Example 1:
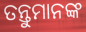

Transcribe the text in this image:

ତନ୍ତୁମାନଙ୍କ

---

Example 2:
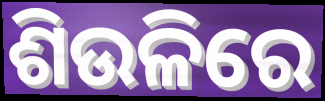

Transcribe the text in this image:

ଶିଉଳିରେ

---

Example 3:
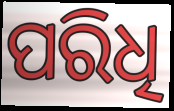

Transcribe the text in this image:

ପରିଧି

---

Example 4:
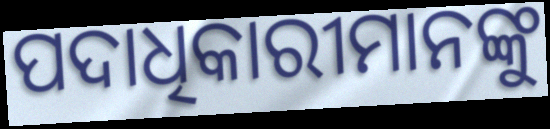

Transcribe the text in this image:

ପଦାଧିକାରୀମାନଙ୍କୁ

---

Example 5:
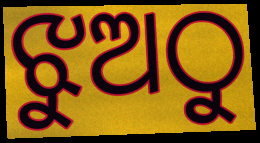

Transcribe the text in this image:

ଝୁଅଠୁ